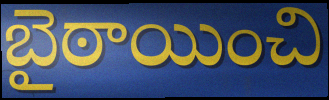
బైఠాయించి